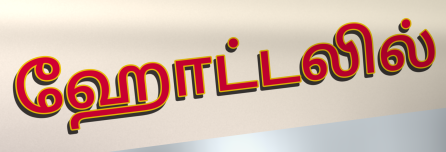
ஹோட்டலில்